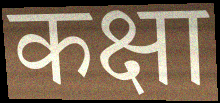
कक्षा